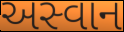
અસ્વાન